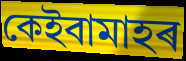
কেইবামাহৰ